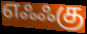
எஃஃகு